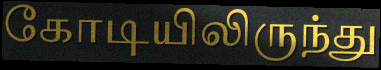
கோடியிலிருந்து